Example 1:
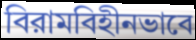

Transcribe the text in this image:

বিরামবিহীনভাবে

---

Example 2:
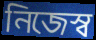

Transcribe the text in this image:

নিজেস্ব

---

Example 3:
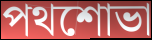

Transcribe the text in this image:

পথশোভা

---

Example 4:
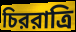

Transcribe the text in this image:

চিররাত্রি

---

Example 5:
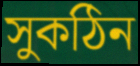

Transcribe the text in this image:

সুকঠিন